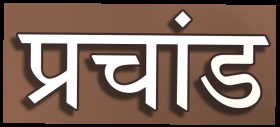
प्रचांड